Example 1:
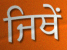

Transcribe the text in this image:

ਜਿਥੇਂ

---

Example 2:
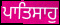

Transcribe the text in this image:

ਪਾਤਿਸਾਹੁ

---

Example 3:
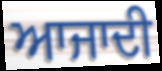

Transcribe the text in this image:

ਆਜਾਦੀ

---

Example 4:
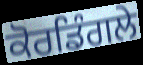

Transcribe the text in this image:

ਕੋਰਡਿੰਗਲੇ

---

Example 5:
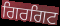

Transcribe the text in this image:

ਗਿਰਗਿਟ